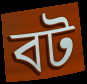
বট